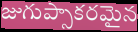
జుగుప్సాకరమైన